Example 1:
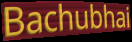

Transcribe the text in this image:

Bachubhai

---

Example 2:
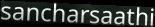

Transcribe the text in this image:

sancharsaathi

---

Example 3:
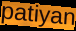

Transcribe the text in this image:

patiyan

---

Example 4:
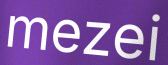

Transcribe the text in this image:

mezei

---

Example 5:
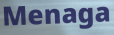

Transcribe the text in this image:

Menaga